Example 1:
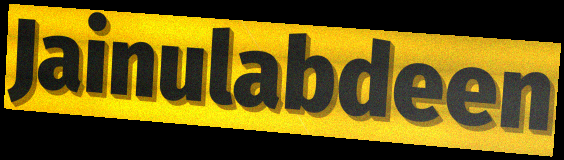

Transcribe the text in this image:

Jainulabdeen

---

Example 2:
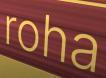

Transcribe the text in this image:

roha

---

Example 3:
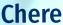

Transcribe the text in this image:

Chere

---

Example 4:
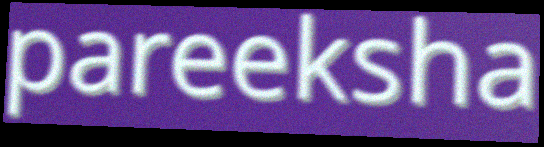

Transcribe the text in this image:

pareeksha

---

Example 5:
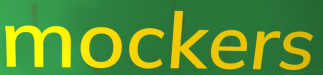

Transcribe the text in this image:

mockers